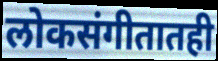
लोकसंगीतातही